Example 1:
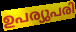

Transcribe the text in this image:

ഉപര്യുപരി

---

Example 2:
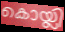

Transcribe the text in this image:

കൊയ്ലി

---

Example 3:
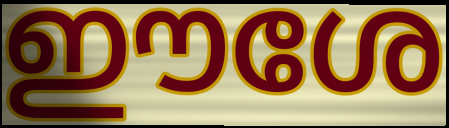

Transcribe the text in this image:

ഈശേ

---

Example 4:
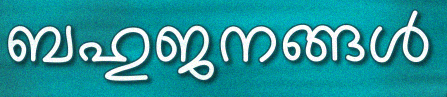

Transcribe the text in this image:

ബഹുജനങ്ങൾ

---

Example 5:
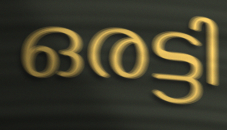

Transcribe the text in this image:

ഒരട്ടി